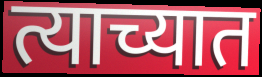
त्याच्यात